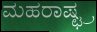
ಮಹರಾಷ್ಟ್ರ